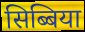
सिब्बिया